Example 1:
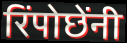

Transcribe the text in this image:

रिंपोछेंनी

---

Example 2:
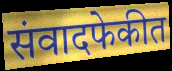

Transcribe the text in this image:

संवादफेकीत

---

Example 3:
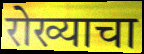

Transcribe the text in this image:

रोख्याचा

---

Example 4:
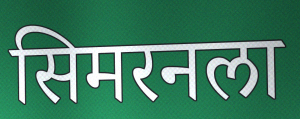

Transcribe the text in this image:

सिमरनला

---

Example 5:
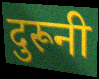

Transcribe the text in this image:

दुरूनी